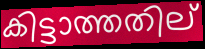
കിട്ടാത്തതില്